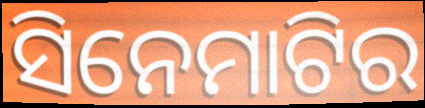
ସିନେମାଟିର